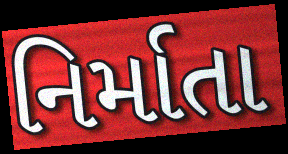
નિર્માતા